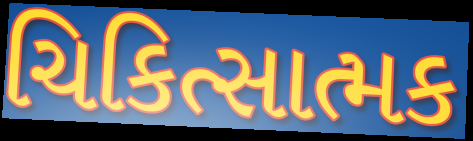
ચિકિત્સાત્મક